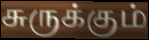
சுருக்கும்